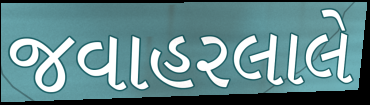
જવાહરલાલે